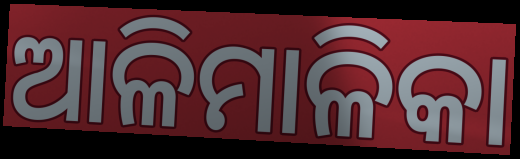
ଆଳିମାଳିକା